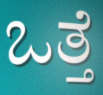
ಒತ್ತೆ